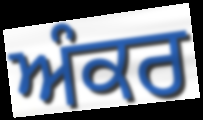
ਅੰਕਰ